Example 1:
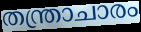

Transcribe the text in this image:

തന്ത്രാചാരം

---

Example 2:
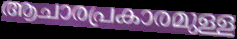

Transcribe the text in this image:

ആചാരപ്രകാരമുള്ള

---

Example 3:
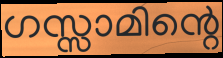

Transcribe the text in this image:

ഗസ്സാമിന്റെ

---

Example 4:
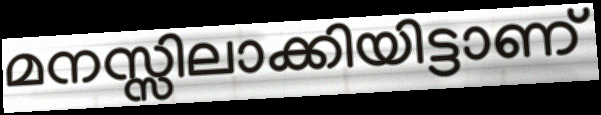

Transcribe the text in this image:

മനസ്സിലാക്കിയിട്ടാണ്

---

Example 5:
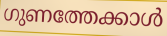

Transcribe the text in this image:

ഗുണത്തേക്കാൾ